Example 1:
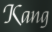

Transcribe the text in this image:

Kang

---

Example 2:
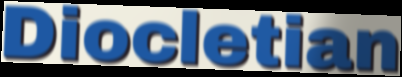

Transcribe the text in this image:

Diocletian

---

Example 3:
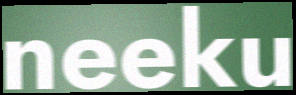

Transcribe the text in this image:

neeku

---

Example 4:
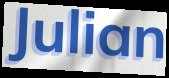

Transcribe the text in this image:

Julian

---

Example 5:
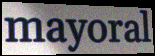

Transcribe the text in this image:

mayoral